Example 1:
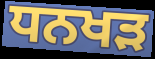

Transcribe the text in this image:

ਧਨਖਡ਼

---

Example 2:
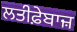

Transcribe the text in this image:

ਲਤੀਫ਼ੇਬਾਜ਼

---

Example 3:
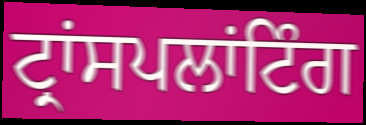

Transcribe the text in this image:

ਟ੍ਰਾਂਸਪਲਾਂਟਿੰਗ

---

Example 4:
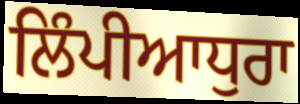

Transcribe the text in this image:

ਲਿੰਪੀਆਧੁਰਾ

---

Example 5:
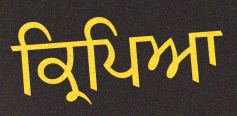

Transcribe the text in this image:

ਕ੍ਰਿਪਿਆ